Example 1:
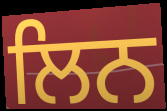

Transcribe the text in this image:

ਲਿਨ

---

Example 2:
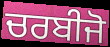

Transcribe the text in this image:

ਚਰਬੀਜੋ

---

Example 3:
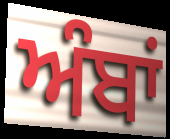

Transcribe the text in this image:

ਅੰਬਾਂ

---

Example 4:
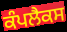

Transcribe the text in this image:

ਕੰਪਲੈਕਸ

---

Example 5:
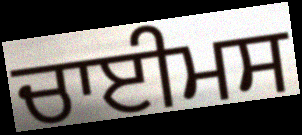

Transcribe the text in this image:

ਚਾਈਮਸ